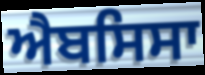
ਐਬਸਿਸਾ